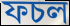
ফচল